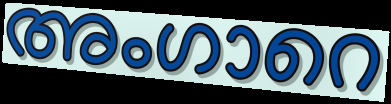
അംഗാറെ